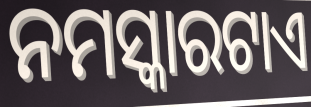
ନମସ୍କାରଟାଏ